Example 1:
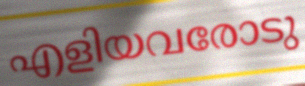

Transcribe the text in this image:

എളിയവരോടു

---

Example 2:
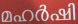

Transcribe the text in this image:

മഹർഷി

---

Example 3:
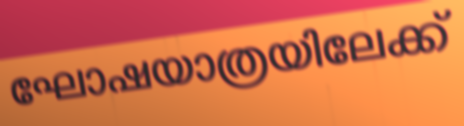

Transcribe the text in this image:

ഘോഷയാത്രയിലേക്ക്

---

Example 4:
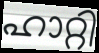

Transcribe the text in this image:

ഹാറ്റി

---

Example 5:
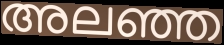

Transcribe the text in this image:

അലഞ്ഞ